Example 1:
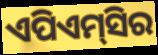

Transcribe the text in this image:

ଏପିଏମ୍‌ସିର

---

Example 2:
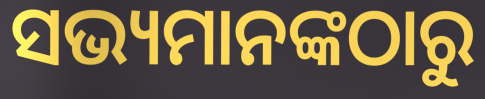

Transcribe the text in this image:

ସଭ୍ୟମାନଙ୍କଠାରୁ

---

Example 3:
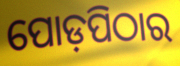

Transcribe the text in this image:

ପୋଡ଼ପିଠାର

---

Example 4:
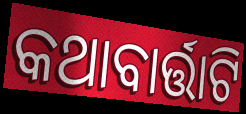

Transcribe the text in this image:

କଥାବାର୍ତ୍ତାଟି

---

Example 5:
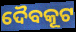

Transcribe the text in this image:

ଦୈବକୂଟ